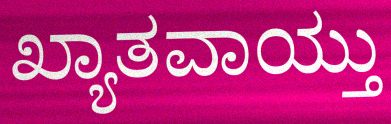
ಖ್ಯಾತವಾಯ್ತು